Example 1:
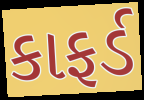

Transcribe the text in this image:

કાફર્ડ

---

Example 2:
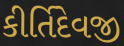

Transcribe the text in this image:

કીર્તિદેવજી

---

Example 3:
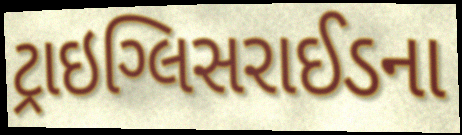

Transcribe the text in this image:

ટ્રાઇગ્લિસરાઈડના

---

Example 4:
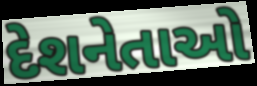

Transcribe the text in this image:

દેશનેતાઓ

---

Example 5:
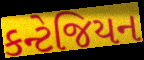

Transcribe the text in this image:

કન્ટેજિયન